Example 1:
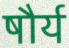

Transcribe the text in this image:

षौर्य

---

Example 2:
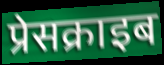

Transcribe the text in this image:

प्रेसक्राइब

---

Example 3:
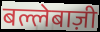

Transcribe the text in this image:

बल्‍लेबाज़ी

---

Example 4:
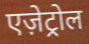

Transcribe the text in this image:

एज़ेट्रोल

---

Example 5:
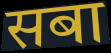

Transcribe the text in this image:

सबा